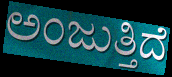
ಅಂಜುತ್ತಿದೆ